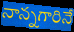
నాన్నగారినే